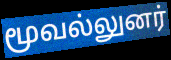
மூவல்லுனர்